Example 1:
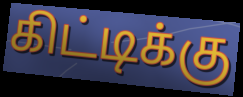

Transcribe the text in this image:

கிட்டிக்கு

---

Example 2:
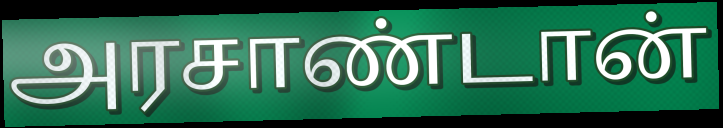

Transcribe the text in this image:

அரசாண்டான்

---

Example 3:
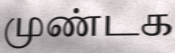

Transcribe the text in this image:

முண்டக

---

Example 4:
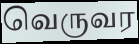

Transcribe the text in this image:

வெருவர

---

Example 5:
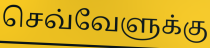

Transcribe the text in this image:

செவ்வேளுக்கு